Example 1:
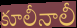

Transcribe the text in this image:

కూలీనాలీ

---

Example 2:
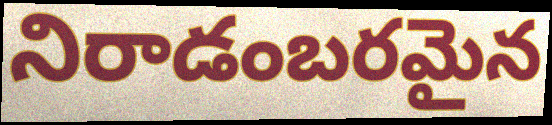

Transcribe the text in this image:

నిరాడంబరమైన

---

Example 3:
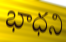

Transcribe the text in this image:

భాధని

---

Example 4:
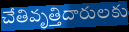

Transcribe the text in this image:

చేతివృత్తిదారులకు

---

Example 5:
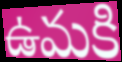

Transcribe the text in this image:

ఉమకి